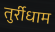
तुर्रीधाम